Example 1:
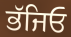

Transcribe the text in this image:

ਭੱਜਿਓ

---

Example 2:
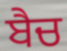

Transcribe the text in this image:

ਬੈਚ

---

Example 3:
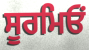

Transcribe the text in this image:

ਸੂਰਮਿਓਂ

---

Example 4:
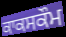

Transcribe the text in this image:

ਕਾਕਸਕੌਮ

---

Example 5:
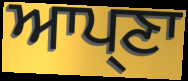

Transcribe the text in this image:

ਆਪ੍ਣਾ